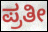
ಪ್ರತೀ